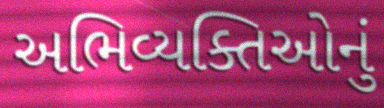
અભિવ્યક્તિઓનું